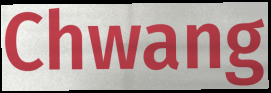
Chwang